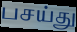
பசய்து